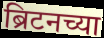
ब्रिटनच्या